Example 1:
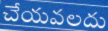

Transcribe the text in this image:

చేయవలదు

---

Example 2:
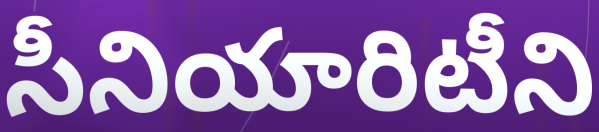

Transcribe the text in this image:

సీనియారిటీని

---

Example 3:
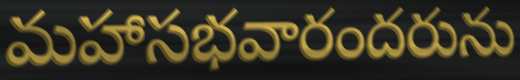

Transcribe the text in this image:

మహాసభవారందరును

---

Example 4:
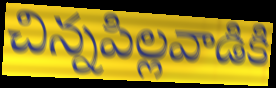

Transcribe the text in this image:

చిన్నపిల్లవాడికి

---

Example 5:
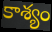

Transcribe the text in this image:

కాశ్యం